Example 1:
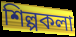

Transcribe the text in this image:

শিল্পকলা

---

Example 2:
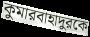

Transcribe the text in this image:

কুমারবাহাদুরকে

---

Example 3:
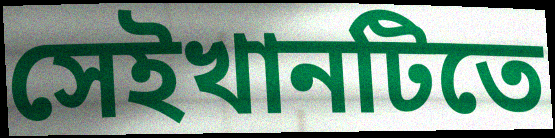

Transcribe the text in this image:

সেইখানটিতে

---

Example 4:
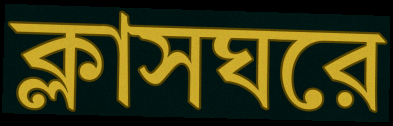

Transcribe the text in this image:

ক্লাসঘরে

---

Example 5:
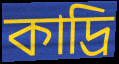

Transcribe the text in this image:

কাদ্রি